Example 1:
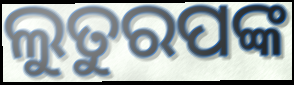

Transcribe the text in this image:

ଲୁତୁରପଙ୍କ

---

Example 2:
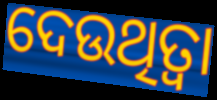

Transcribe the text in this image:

ଦେଉଥିତ୍ବା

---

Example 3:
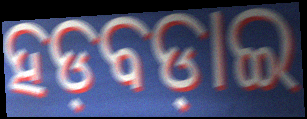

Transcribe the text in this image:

ହଡ଼ବଡ଼ାଇ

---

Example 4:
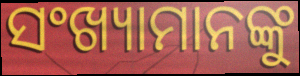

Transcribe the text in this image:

ସଂଖ୍ୟାମାନଙ୍କୁ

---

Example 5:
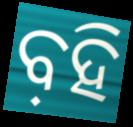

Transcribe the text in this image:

ବ଼ହି